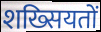
शख्सियतों